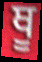
ਥੂ